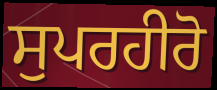
ਸੁਪਰਹੀਰੋ